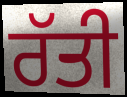
ਰੱਤੀ